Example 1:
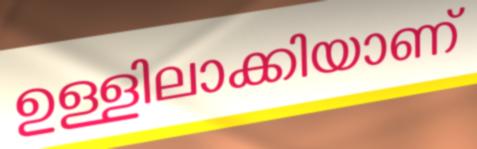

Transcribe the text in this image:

ഉള്ളിലാക്കിയാണ്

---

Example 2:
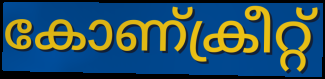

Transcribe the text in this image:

കോണ്ക്രീറ്റ്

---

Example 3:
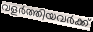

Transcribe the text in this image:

വളർത്തിയവർക്ക്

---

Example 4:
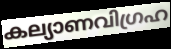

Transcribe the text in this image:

കല്യാണവിഗ്രഹ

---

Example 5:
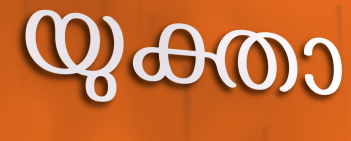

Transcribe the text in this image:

യുക്താ